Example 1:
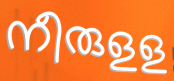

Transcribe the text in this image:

നീരുളള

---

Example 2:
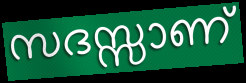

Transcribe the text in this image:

സദസ്സാണ്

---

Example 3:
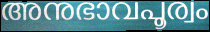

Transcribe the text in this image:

അനുഭാവപൂര്വം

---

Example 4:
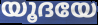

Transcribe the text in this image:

യൂദയേ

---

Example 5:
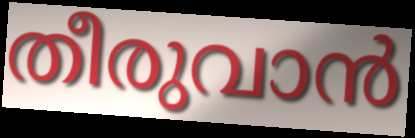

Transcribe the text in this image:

തീരുവാൻ